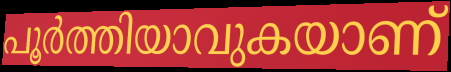
പൂർത്തിയാവുകയാണ്